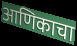
आणिकाचा